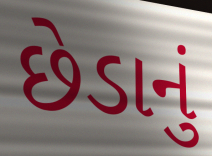
છેડાનું